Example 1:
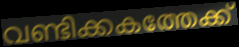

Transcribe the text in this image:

വണ്ടിക്കകത്തേക്ക്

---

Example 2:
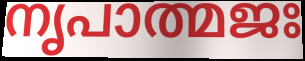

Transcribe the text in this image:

നൃപാത്മജഃ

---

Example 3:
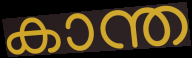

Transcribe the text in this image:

കാന്ത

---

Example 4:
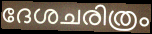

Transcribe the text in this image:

ദേശചരിത്രം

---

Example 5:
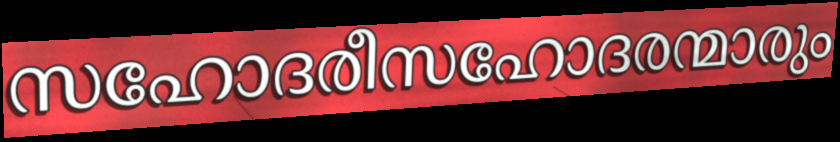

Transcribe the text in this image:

സഹോദരീസഹോദരന്മാരും